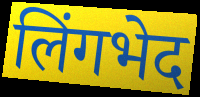
लिंगभेद